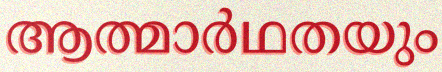
ആത്മാർഥതയും